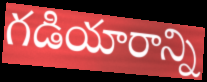
గడియారాన్ని